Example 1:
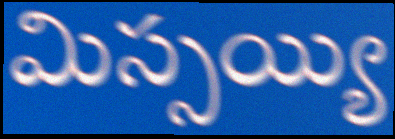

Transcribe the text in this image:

మిస్సయ్యి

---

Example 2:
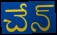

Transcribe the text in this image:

చేన్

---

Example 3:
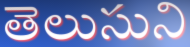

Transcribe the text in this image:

తెలుసుని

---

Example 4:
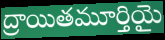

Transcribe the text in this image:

ద్రాయితమూర్తియై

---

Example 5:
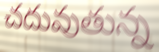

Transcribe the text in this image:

చదువుతున్న